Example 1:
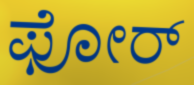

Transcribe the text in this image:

ಫೋರ್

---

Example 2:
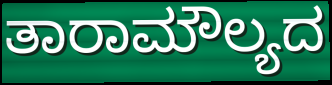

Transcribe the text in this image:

ತಾರಾಮೌಲ್ಯದ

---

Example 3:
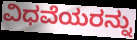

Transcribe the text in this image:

ವಿಧವೆಯರನ್ನು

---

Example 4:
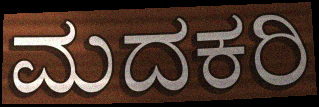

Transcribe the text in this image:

ಮದಕರಿ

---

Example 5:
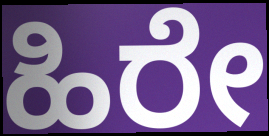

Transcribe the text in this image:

ಹಿರೇ